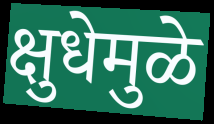
क्षुधेमुळे